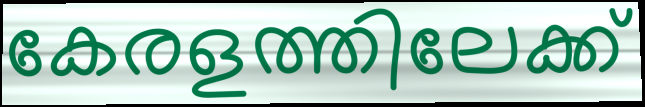
കേരളത്തിലേക്ക്